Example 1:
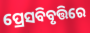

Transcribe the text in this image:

ପ୍ରେସବିବୃତ୍ତିରେ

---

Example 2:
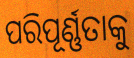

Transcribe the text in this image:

ପରିପୂର୍ଣ୍ଣତାକୁ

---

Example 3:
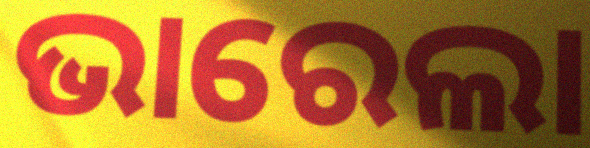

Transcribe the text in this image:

ଭାରେଲା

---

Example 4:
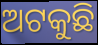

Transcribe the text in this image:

ଅଟକୁଛି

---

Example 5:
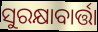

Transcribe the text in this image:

ସୁରକ୍ଷାବାର୍ତ୍ତା